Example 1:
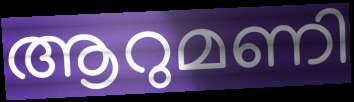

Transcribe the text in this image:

ആറുമണി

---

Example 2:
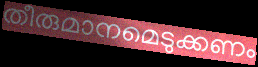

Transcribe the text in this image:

തീരുമാനമെടുക്കണം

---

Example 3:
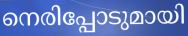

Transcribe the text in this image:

നെരിപ്പോടുമായി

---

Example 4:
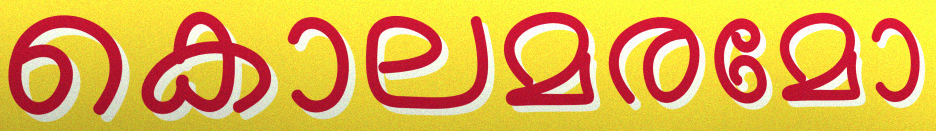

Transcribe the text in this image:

കൊലമരമോ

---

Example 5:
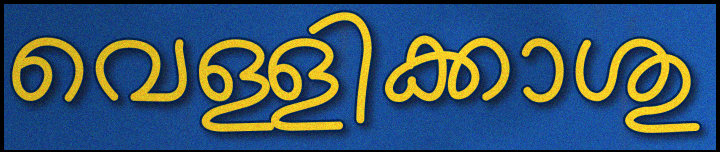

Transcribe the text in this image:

വെള്ളിക്കാശു